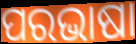
ପରଭାଷା